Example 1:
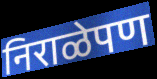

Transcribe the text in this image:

निराळेपण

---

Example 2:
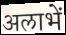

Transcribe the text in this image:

अलाभें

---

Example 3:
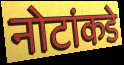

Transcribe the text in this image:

नोटांकडे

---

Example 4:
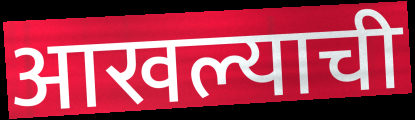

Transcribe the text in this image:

आखल्याची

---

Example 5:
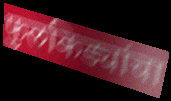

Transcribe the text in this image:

फुलकिड्यांचा